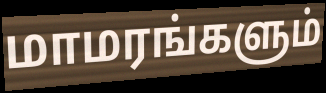
மாமரங்களும்